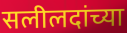
सलीलदांच्या